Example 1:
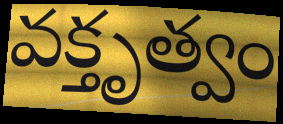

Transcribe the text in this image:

వక్తృత్వం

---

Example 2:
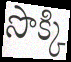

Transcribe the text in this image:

సొక్కి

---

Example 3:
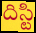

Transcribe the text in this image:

దిస్టి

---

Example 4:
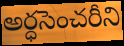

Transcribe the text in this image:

అర్ధసెంచరీని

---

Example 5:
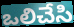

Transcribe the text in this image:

ఒలిచేసి